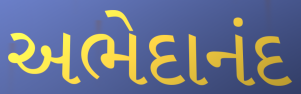
અભેદાનંદ